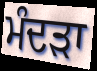
ਮੰਦੜਾ